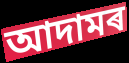
আদামৰ